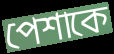
পেশাকে